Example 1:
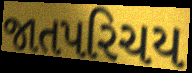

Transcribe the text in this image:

જાતપરિચય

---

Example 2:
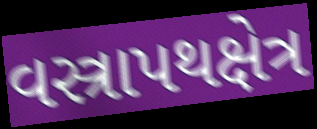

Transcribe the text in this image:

વસ્ત્રાપથક્ષેત્ર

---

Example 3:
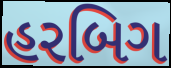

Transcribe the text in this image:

હરબિગ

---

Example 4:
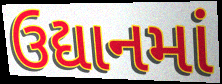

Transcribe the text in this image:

ઉદ્યાનમાં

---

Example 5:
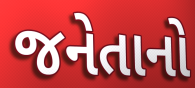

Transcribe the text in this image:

જનેતાનો